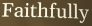
Faithfully